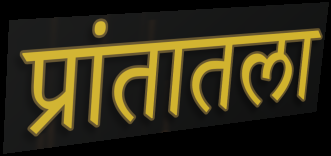
प्रांतातला